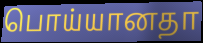
பொய்யானதா